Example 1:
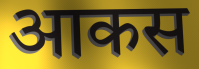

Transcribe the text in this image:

आकस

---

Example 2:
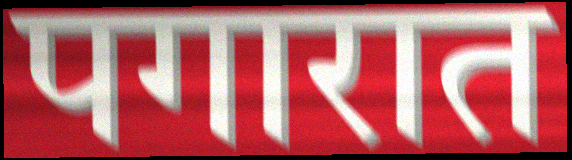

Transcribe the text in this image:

पगारात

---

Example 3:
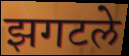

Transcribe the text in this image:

झगटले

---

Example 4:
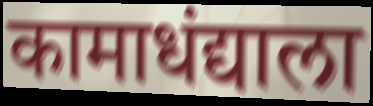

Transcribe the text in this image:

कामाधंद्याला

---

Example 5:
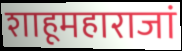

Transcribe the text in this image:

शाहूमहाराजां